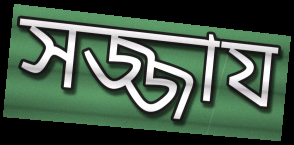
সজ্জায